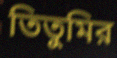
তিতুমির